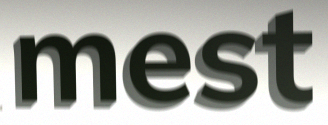
mest